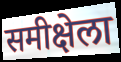
समीक्षेला